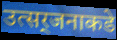
उत्सर्जनाकडे